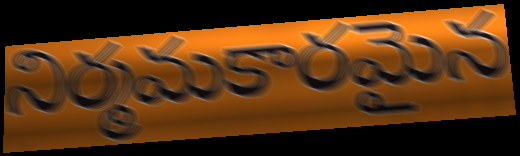
నిర్మమకారమైన